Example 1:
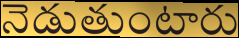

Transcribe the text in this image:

నెడుతుంటారు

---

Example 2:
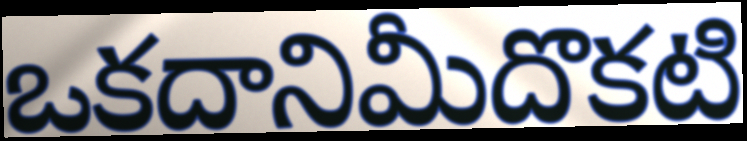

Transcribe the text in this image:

ఒకదానిమీదొకటి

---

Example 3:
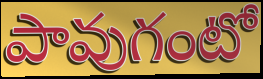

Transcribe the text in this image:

పావుగంటో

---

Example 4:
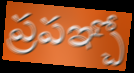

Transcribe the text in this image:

ప్రపఞ్చో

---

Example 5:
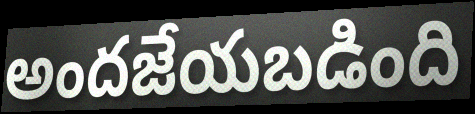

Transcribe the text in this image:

అందజేయబడింది